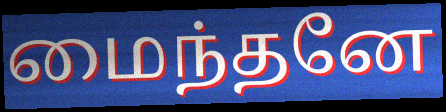
மைந்தனே